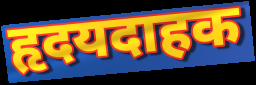
हृदयदाहक